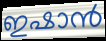
ഇഷാൻ